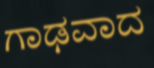
ಗಾಢವಾದ